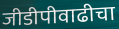
जीडीपीवाढीचा